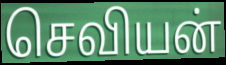
செவியன்